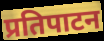
प्रतिपाटन